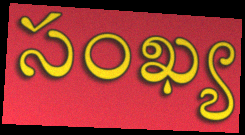
సంఖ్య